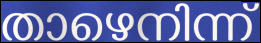
താഴെനിന്ന്